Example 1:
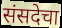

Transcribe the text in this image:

संसदेचा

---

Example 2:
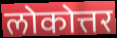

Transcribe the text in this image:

लोकोत्तर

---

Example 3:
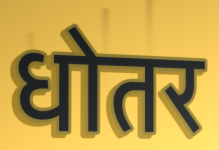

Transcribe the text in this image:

धोतर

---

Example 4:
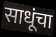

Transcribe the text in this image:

साधूंचा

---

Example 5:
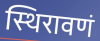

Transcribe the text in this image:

स्थिरावणं